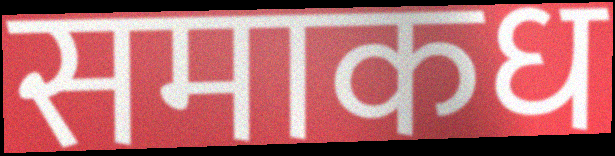
समाकध